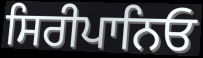
ਸਿਰੀਪਾਨਿਓ